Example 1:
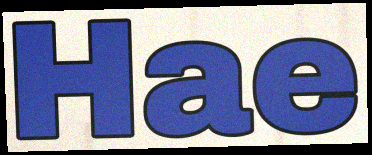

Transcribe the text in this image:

Hae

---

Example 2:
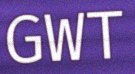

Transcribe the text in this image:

GWT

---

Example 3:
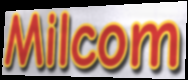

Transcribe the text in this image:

Milcom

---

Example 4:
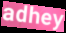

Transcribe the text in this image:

adhey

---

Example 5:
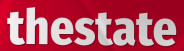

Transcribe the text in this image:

thestate